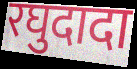
रघुदादा